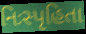
નિઃસ્પૃહિતા